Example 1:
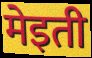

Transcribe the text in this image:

मेइती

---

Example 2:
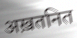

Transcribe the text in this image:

अख़तनित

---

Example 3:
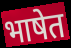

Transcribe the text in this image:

भाषेत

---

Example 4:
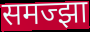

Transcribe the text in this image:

समज्झा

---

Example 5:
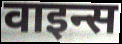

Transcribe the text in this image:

वाइन्स